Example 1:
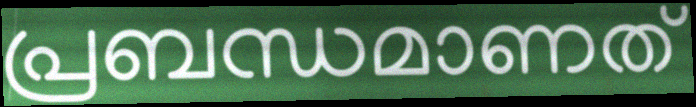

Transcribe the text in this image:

പ്രബന്ധമാണത്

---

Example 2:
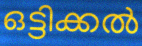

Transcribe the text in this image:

ഒട്ടിക്കൽ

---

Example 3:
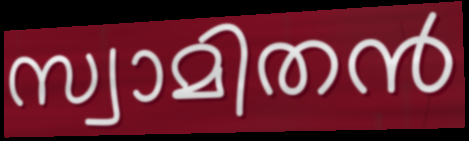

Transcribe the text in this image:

സ്വാമിതൻ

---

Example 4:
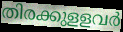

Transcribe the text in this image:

തിരക്കുളളവർ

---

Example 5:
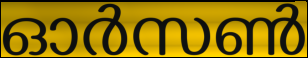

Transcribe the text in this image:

ഓർസൺ